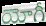
యోగీ